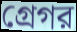
গ্রেগর